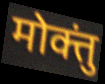
मोक्तुं